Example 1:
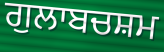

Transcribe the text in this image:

ਗੁਲਾਬਚਸ਼ਮ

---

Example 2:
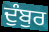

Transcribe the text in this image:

ਦੁੰਬੁਰ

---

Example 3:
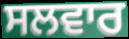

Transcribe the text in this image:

ਸਲਵਾਰ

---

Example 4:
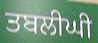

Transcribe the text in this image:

ਤਬਲੀਘੀ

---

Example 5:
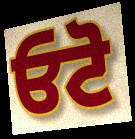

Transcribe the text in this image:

ਓਟੋ